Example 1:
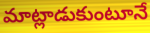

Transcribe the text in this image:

మాట్లాడుకుంటూనే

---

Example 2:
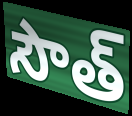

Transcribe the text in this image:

సౌత్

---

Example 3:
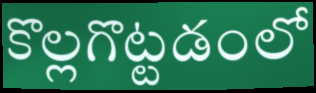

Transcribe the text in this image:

కొల్లగొట్టడంలో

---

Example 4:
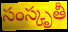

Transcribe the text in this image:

సంస్కృతీ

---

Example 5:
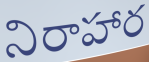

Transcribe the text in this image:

నిరాహార